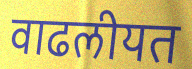
वाढलीयत